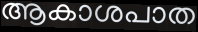
ആകാശപാത